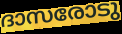
ദാസരോടു